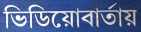
ভিডিয়োবার্তায়